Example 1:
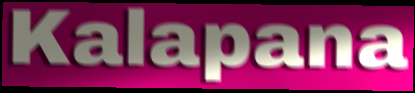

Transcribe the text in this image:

Kalapana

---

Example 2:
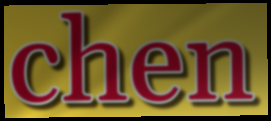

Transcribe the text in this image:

chen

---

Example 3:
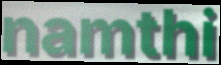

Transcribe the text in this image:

namthi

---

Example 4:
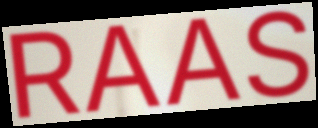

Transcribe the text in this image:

RAAS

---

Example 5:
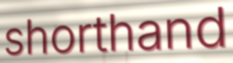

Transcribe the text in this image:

shorthand